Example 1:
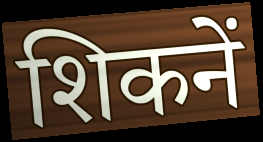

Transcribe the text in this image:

शिकनें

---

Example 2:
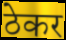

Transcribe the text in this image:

ठेकर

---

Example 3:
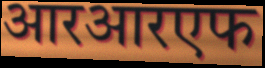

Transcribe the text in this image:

आरआरएफ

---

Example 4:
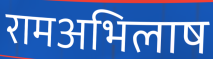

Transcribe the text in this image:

रामअभिलाष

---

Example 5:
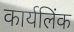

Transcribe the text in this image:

कार्यलिंक